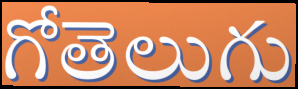
గోతెలుగు